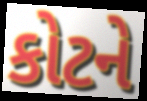
કોટને